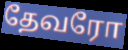
தேவரோ